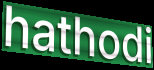
hathodi